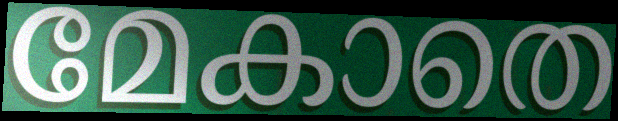
മേകാതെ